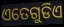
ଏତେଗୁଡିଏ